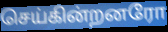
செய்கின்றனரோ